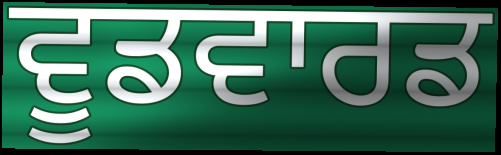
ਵੂਡਵਾਰਡ